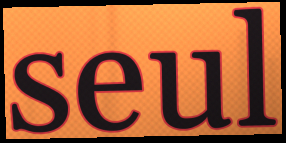
seul